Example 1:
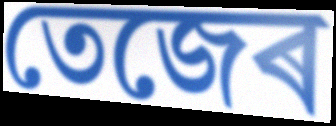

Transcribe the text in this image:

তেজেৰ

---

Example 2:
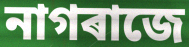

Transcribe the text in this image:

নাগৰাজে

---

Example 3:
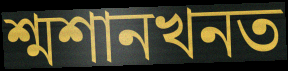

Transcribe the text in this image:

শ্মশানখনত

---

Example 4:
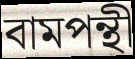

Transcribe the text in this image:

বামপন্থী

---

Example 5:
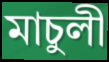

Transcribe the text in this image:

মাচুলী